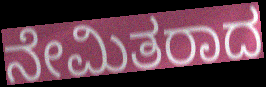
ನೇಮಿತರಾದ